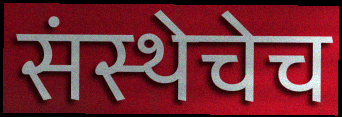
संस्थेचेच